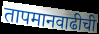
तापमानवाढीची